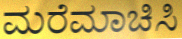
ಮರೆಮಾಚಿಸಿ